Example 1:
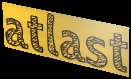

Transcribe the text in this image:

atlast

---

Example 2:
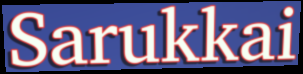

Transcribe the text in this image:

Sarukkai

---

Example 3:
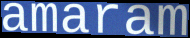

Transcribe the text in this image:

amaram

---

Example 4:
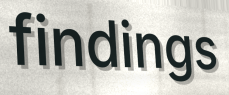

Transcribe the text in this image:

findings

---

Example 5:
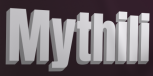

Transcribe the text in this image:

Mythili